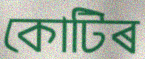
কোটিৰ